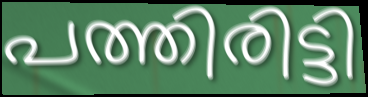
പത്തിരിട്ടി